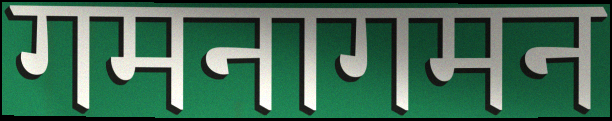
गमनागमन